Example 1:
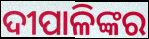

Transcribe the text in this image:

ଦୀପାଳିଙ୍କର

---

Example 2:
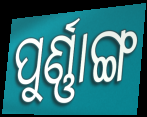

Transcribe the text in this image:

ପୁର୍ଣ୍ଣାଙ୍ଗ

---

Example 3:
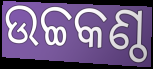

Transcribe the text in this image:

ଉଚ୍ଚକଣ୍ଠ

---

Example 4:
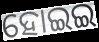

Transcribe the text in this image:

ହୋଇଇ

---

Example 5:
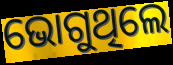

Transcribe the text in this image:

ଭୋଗୁଥିଲେ